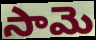
సామె